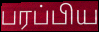
பரப்பிய